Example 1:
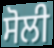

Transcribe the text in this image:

ਸੋਲੀ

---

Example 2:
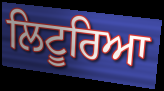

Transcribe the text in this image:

ਲਿਟੂਰਿਆ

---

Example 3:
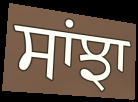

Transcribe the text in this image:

ਸਾਂਝਾ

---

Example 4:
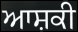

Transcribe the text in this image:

ਆਸ਼ਕੀ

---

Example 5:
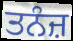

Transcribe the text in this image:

ਤਨੰਜ਼